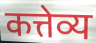
कत्तेव्य